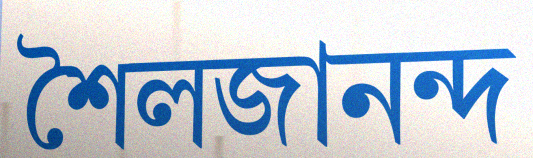
শৈলজানন্দ